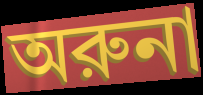
অরুনা